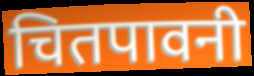
चितपावनी